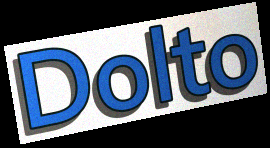
Dolto